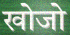
खोजो